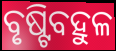
ବୃଷ୍ଟିବହୁଳ